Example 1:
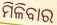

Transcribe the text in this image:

ମିଳିବାର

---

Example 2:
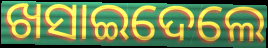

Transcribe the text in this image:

ଖସାଇଦେଲେ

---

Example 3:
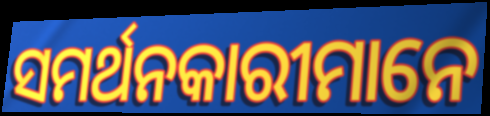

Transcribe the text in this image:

ସମର୍ଥନକାରୀମାନେ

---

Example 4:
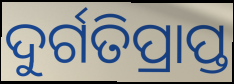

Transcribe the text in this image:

ଦୁର୍ଗତିପ୍ରାପ୍ତ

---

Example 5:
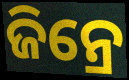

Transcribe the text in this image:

ଜିନ୍ରେ